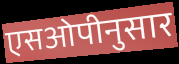
एसओपीनुसार